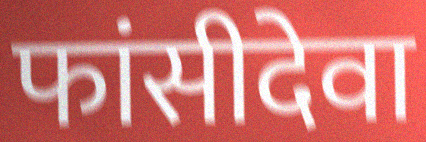
फांसीदेवा